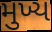
મુખ્ય